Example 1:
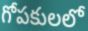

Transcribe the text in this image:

గోపకులలో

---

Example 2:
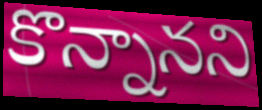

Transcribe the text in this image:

కొన్నానని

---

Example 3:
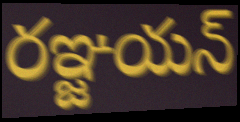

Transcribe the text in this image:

రఞ్జయన్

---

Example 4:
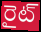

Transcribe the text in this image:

రైట్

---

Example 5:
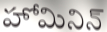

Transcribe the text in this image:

హోమినిన్